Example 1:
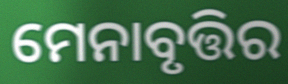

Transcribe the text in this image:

ମେନାବୃତ୍ତିର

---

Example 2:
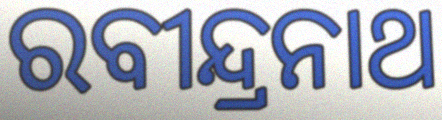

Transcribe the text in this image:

ରବୀନ୍ଦ୍ରନାଥ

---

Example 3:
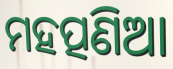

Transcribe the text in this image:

ମହତ୍ପଣିଆ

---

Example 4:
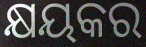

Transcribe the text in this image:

କ୍ଷୟକର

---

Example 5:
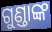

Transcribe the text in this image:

ଗୁଣ୍ଡାଙ୍କ